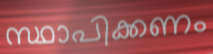
സ്ഥാപിക്കണം